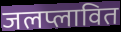
जलप्लावित